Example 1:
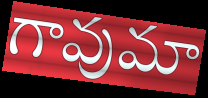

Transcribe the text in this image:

గావుమా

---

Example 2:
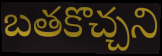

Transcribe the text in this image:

బతకొచ్చని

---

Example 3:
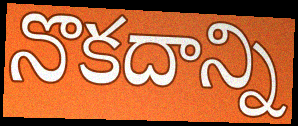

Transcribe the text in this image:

నొకదాన్ని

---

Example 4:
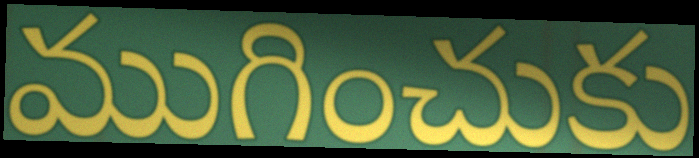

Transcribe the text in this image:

ముగించుకు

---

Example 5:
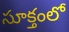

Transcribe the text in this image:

సూక్తంలో